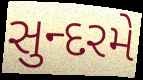
સુન્દરમે